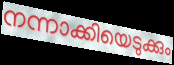
നന്നാക്കിയെടുക്കും